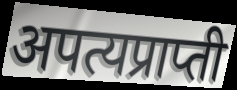
अपत्यप्राप्ती